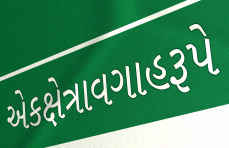
એકક્ષેત્રાવગાહરૂપે